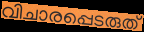
വിചാരപ്പെടരുത്